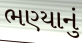
ભણ્યાનું